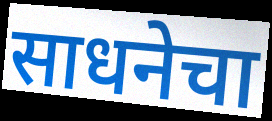
साधनेचा